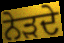
ਨੇੜਦੇ